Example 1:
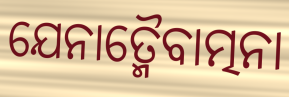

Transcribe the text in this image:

ଯେନାତ୍ମୈବାତ୍ମନା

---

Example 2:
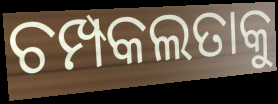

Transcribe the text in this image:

ଚମ୍ପକଲତାକୁ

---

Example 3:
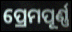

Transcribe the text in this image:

ପ୍ରେମପୂର୍ଣ୍ଣ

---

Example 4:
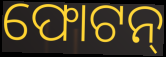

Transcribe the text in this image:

ଫୋଟନ୍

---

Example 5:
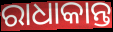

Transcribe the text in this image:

ରାଧାକାନ୍ତ